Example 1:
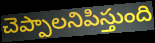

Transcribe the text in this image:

చెప్పాలనిపిస్తుంది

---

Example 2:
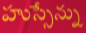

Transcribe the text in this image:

హుస్సేన్ను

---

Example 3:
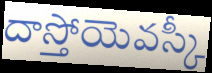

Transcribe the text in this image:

దాస్తోయెవస్కీ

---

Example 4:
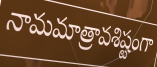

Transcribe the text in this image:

నామమాత్రావశిష్టంగా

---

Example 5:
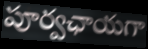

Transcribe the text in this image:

పూర్వఛాయగా